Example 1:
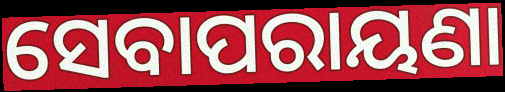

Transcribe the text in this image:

ସେବାପରାୟଣା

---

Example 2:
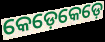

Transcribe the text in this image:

କେଡ଼େକେଡ଼େ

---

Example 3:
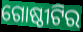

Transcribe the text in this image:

ଗୋଷ୍ଠୀଟିର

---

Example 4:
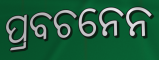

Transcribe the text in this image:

ପ୍ରବଚନେନ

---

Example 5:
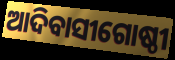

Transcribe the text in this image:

ଆଦିବାସୀଗୋଷ୍ଠୀ